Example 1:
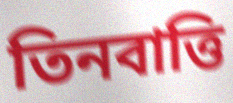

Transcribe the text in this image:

তিনবাত্তি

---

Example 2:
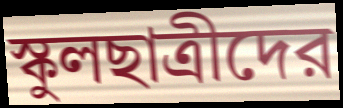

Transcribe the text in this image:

স্কুলছাত্রীদের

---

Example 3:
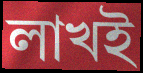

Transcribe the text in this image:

লাখই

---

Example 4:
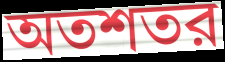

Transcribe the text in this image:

অতশতর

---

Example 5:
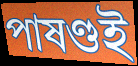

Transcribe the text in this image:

পাষণ্ডই